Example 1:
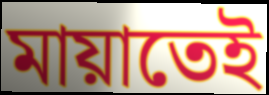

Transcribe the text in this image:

মায়াতেই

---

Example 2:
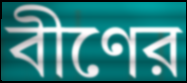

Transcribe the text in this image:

বীণের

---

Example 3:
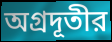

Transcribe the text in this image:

অগ্রদূতীর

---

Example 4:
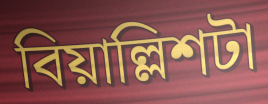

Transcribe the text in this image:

বিয়াল্লিশটা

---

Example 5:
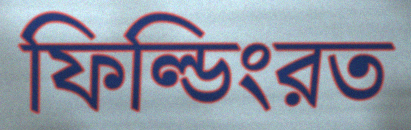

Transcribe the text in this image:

ফিল্ডিংরত